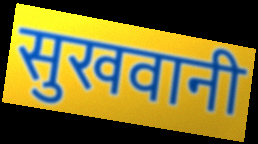
सुखवानी